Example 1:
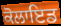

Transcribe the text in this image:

ਕੋਲਾਇਡ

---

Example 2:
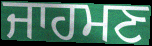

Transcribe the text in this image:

ਜਾਹਮਣ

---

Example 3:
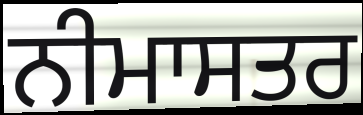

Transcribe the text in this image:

ਨੀਮਾਸਤਰ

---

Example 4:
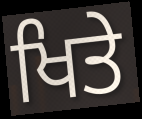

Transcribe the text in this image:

ਖਿਤੇ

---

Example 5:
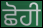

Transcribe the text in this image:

ਛੋਹੀ